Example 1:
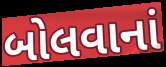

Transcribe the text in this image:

બોલવાનાં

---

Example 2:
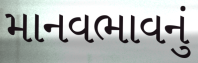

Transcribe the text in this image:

માનવભાવનું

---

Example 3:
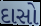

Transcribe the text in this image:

દાસો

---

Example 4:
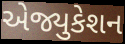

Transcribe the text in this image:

એજ્યુકેશન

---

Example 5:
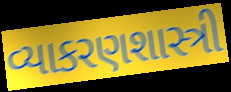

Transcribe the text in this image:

વ્યાકરણશાસ્ત્રી